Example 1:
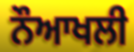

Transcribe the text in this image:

ਨੌਆਖਲੀ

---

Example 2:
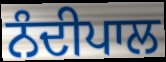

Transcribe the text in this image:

ਨੰਦੀਪਾਲ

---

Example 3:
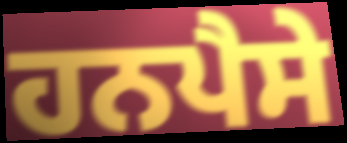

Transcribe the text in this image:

ਹਨਪੈਸੇ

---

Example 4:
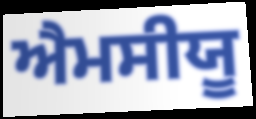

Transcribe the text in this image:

ਐਮਸੀਯੂ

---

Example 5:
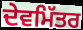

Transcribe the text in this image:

ਦੇਵਮਿੱਤਰ